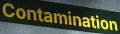
Contamination